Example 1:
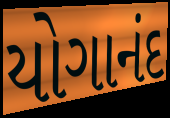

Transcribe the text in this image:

યોગાનંદ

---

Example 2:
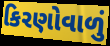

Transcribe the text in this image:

કિરણોવાળું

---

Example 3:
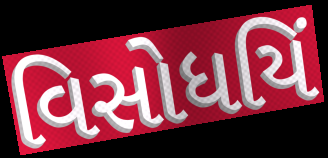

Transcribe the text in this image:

વિસોધયિં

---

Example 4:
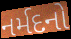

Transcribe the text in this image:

નર્મદનો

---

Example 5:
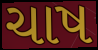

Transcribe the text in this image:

ચાષ